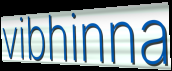
vibhinna